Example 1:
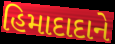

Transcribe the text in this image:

હિમાદાદાને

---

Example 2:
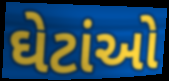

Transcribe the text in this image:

ઘેટાંઓ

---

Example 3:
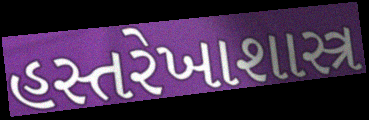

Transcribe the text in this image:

હસ્તરેખાશાસ્ત્ર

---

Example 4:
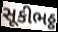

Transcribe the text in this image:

સૂકીભઠ્ઠ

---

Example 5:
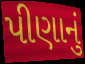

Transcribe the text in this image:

પીણાનું